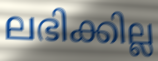
ലഭിക്കില്ല